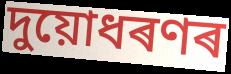
দুয়োধৰণৰ